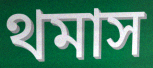
থমাস